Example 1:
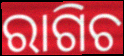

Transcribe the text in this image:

ରାଗିଚ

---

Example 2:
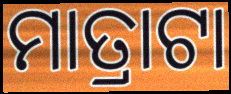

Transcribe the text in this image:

ମାତ୍ରାଟା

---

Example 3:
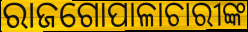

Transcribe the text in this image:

ରାଜଗୋପାଳାଚାରୀଙ୍କ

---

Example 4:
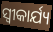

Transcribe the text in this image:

ସ୍ୱୀକାର୍ଯ୍ୟ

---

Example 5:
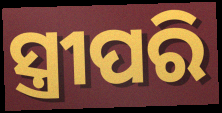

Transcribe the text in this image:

ସ୍ତ୍ରୀପରି